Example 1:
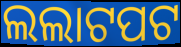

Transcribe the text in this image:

ଲଲାଟପଟ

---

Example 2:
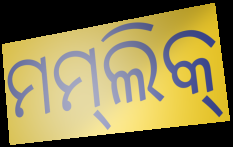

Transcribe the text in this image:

ମମ୍‌ଲିକ୍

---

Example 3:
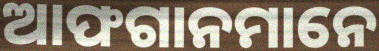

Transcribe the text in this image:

ଆଫଗାନମାନେ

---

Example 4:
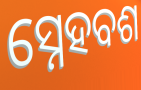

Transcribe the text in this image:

ସ୍ନେହବଶ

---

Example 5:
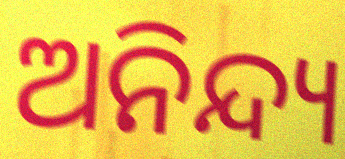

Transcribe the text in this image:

ଅନିନ୍ଦ୍ୟ